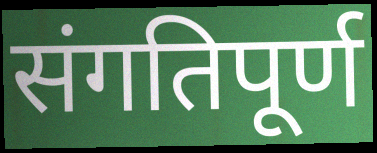
संगतिपूर्ण